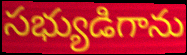
సభ్యుడిగాను